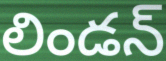
లిండన్